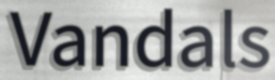
Vandals